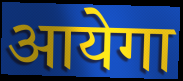
आयेगा